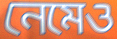
নেমেও